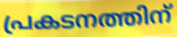
പ്രകടനത്തിന്